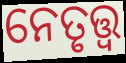
ନେତୃତ୍ତ୍ୱ